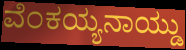
ವೆಂಕಯ್ಯನಾಯ್ಡು